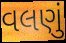
વલણું